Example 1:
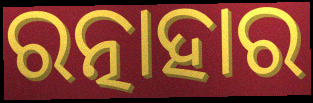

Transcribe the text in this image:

ରତ୍ନାହାର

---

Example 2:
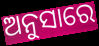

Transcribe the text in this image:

ଅନୁସାରେ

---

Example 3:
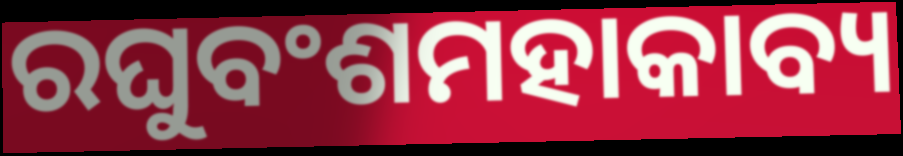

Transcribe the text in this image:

ରଘୁବଂଶମହାକାବ୍ୟ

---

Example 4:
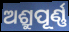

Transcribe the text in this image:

ଅଶ୍ରୁପୂର୍ଣ୍ଣ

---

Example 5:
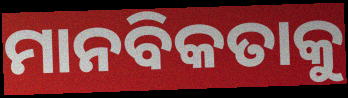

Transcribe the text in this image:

ମାନବିକତାକୁ